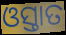
ଓସ୍ତାତ